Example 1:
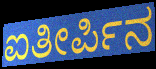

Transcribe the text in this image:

ಐತೀರ್ಪಿನ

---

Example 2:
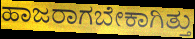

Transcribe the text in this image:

ಹಾಜರಾಗಬೇಕಾಗಿತ್ತು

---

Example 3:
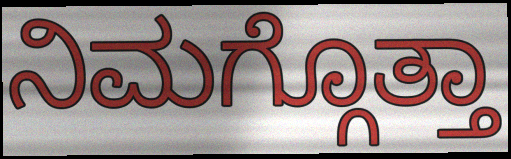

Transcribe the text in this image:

ನಿಮಗ್ಗೊತ್ತಾ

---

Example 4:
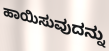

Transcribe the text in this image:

ಹಾಯಿಸುವುದನ್ನು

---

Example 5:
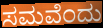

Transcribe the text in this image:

ಸಮವೆಂದು